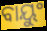
ବାୟୁଂ